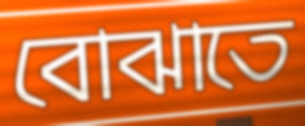
বোঝাতে